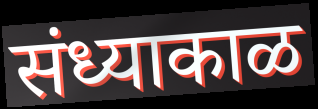
संध्याकाळ